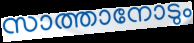
സാത്താനോടും